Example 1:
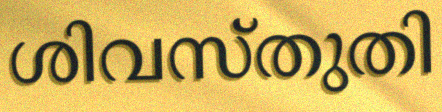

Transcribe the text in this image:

ശിവസ്തുതി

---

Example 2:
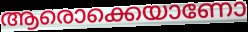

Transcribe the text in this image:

ആരൊക്കെയാണോ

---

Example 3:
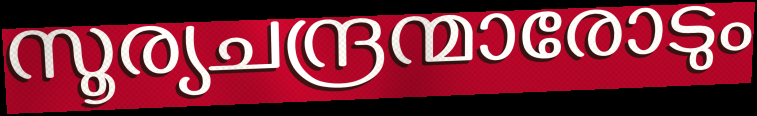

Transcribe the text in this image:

സൂര്യചന്ദ്രന്മാരോടും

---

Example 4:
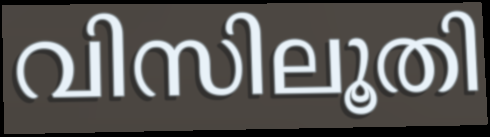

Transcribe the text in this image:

വിസിലൂതി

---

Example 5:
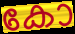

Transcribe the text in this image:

കോ